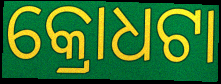
କ୍ରୋଧଟା